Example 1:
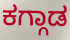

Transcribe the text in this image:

ಕಗ್ಗಾಡ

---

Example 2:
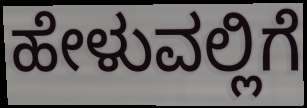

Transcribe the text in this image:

ಹೇಳುವಲ್ಲಿಗೆ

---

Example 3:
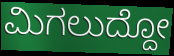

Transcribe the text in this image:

ಮಿಗಲುದ್ದೋ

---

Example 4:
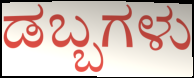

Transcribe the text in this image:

ಡಬ್ಬಗಳು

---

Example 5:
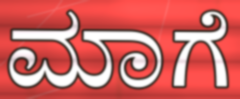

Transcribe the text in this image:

ಮಾಗೆ